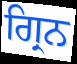
ਗ੍ਰਿਨ